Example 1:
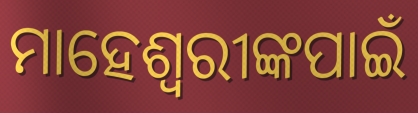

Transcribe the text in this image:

ମାହେଶ୍ୱରୀଙ୍କପାଇଁ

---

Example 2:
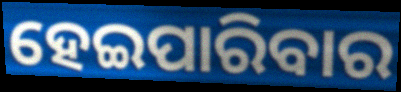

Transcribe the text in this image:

ହେଇପାରିବାର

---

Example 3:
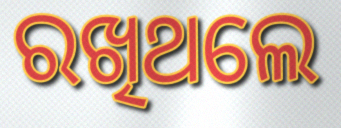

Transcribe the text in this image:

ରଖିଥଲେ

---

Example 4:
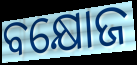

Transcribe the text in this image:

ବକ୍ଷୋଜ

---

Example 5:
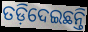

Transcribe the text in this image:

ତଡ଼ିଦେଇଛନ୍ତି